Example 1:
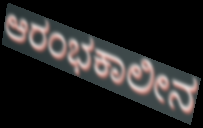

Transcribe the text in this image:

ಆರಂಭಕಾಲೀನ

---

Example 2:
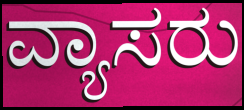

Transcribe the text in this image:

ವ್ಯಾಸರು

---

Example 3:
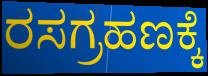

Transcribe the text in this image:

ರಸಗ್ರಹಣಕ್ಕೆ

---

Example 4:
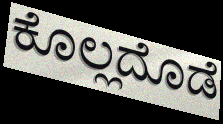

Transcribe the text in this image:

ಕೊಲ್ಲದೊಡೆ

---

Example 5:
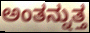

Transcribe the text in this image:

ಅಂತನ್ನುತ್ತ